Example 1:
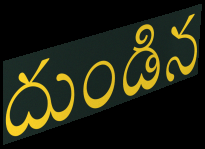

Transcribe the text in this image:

దుండిన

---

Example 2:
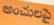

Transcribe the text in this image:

అంచులపై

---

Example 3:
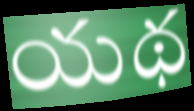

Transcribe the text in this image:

యథ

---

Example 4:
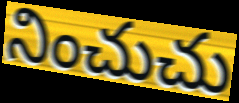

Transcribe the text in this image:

నించుచు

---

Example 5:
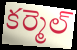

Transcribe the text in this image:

కర్మెల్